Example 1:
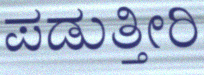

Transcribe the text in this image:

ಪಡುತ್ತೀರಿ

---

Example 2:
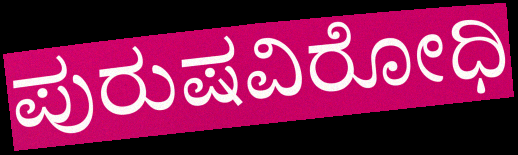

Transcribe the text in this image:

ಪುರುಷವಿರೋಧಿ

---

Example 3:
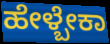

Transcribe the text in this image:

ಹೇಳ್ಬೇಕಾ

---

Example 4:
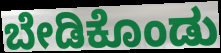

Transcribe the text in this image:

ಬೇಡಿಕೊಂಡು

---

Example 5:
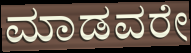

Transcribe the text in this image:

ಮಾಡವರೇ